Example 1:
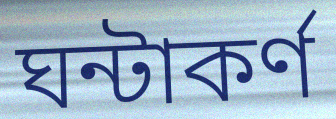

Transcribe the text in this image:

ঘন্টাকর্ণ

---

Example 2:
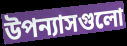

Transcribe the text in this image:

উপন্যাসগুলো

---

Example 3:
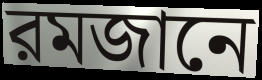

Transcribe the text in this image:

রমজানে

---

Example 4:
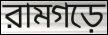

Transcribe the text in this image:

রামগড়ে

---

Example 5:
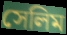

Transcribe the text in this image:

সেলিম